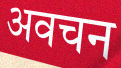
अवचन